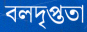
বলদৃপ্ততা